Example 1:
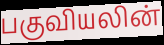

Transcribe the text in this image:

பகுவியலின்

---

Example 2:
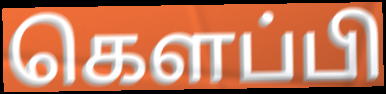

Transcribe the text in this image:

கெளப்பி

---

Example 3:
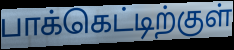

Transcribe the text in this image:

பாக்கெட்டிற்குள்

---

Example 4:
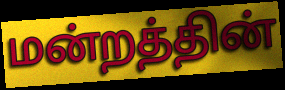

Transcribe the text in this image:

மன்றத்தின்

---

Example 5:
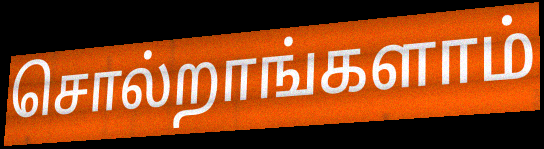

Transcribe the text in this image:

சொல்றாங்களாம்